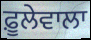
ਫ਼ੂਲੇਵਾਲਾ